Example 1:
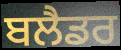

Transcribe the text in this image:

ਬਲੈਡਰ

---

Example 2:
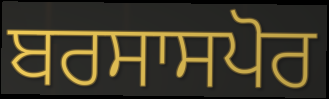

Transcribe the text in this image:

ਬਰਸਾਸਪੋਰ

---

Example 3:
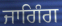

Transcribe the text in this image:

ਜਾਗਿੰਗ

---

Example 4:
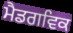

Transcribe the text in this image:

ਮੈਡਗਵਿਕ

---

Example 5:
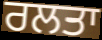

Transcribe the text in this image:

ਰਲਤਾ